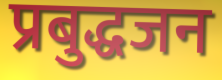
प्रबुद्धजन